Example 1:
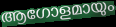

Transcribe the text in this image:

ആഗോളമായും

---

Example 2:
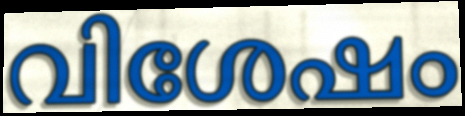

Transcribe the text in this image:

വിശേഷം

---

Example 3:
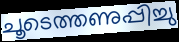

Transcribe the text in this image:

ചൂടെത്തണുപ്പിച്ചു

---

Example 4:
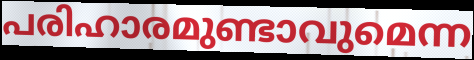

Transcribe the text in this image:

പരിഹാരമുണ്ടാവുമെന്ന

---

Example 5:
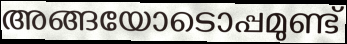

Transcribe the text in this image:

അങ്ങയോടൊപ്പമുണ്ട്